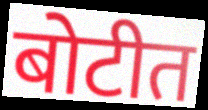
बोटीत